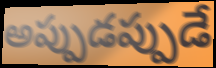
అప్పుడప్పుడే